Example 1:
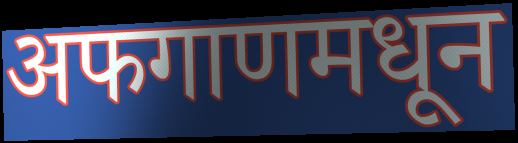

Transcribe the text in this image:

अफगाणमधून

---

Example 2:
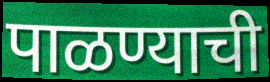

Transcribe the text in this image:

पाळण्याची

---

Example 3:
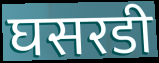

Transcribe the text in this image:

घसरडी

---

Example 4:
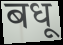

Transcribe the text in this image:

बधू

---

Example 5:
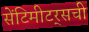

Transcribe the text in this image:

सेंटिमीटर्सची